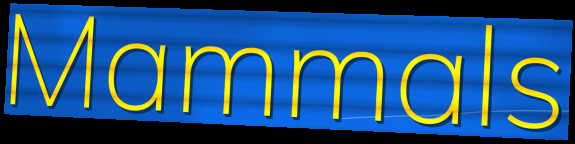
Mammals